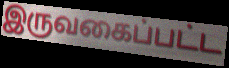
இருவகைப்பட்ட